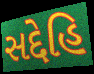
સદ્દેહિ